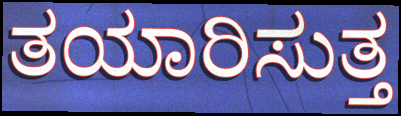
ತಯಾರಿಸುತ್ತ